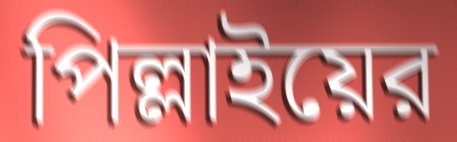
পিল্লাইয়ের